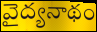
వైద్యనాథం